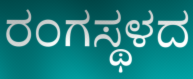
ರಂಗಸ್ಥಳದ